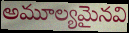
అమూల్యమైనవి